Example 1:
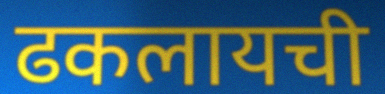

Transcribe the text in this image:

ढकलायची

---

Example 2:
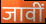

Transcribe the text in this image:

जावीं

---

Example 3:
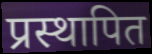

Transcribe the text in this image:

प्रस्थापित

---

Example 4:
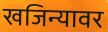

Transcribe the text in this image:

खजिन्यावर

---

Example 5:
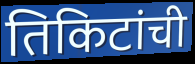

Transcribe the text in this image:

तिकिटांची